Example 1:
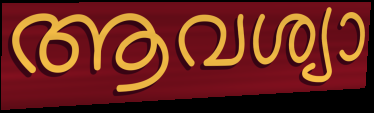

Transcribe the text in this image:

ആവശ്യാ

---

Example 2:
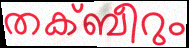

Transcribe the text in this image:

തക്ബീറും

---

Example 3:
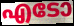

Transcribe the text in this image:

എടോ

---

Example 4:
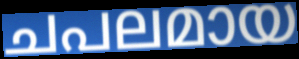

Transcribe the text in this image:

ചപലമായ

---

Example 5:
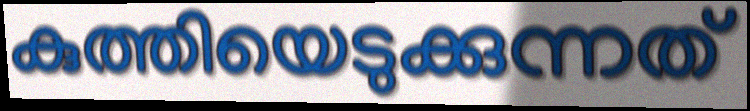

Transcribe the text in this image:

കുത്തിയെടുക്കുന്നത്